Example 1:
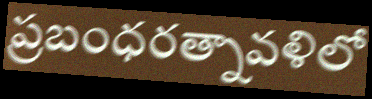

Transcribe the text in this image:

ప్రబంధరత్నావళిలో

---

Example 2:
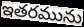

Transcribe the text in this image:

ఇతరమును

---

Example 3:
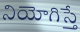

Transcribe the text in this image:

నియోగిస్తే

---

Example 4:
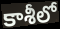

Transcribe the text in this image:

కాశీలో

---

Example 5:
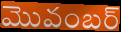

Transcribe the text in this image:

మొవంబర్